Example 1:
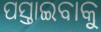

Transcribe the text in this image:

ପସ୍ତାଇବାକୁ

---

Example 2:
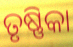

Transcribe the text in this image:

ତୃଷ୍ଣିକା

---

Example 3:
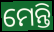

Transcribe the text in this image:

ମେନ୍ତି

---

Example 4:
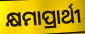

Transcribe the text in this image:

କ୍ଷମାପ୍ରାର୍ଥୀ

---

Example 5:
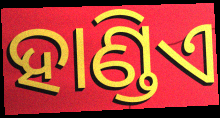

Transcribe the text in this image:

ହାଣ୍ଡିଏ